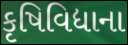
કૃષિવિદ્યાના